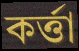
কৰ্ত্তা